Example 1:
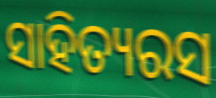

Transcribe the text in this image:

ସାହିତ୍ୟରସ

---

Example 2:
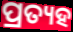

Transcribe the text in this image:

ପ୍ରତ୍ୟହ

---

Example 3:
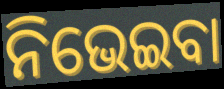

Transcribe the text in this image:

ନିଭେଇବା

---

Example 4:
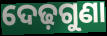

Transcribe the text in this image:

ଦେଢ଼ଗୁଣା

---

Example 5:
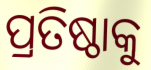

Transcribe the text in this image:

ପ୍ରତିଷ୍ଠାକୁ